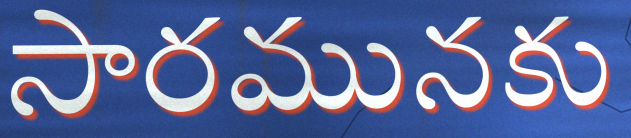
సారమునకు